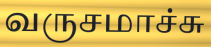
வருசமாச்சு